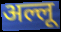
अल्लू